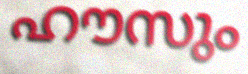
ഹൗസും